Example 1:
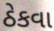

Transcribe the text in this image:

ઠેકવા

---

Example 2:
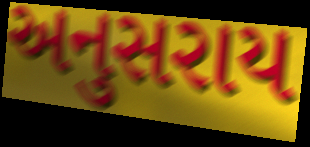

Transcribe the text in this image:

અનુસરાય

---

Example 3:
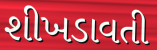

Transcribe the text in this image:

શીખડાવતી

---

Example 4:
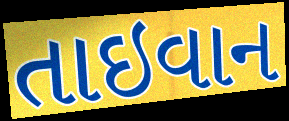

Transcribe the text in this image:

તાઇવાન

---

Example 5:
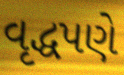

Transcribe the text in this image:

વૃદ્ધપણે